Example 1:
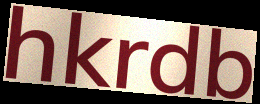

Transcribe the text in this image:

hkrdb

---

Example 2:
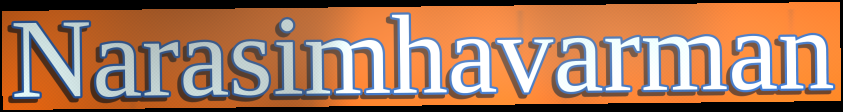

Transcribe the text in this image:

Narasimhavarman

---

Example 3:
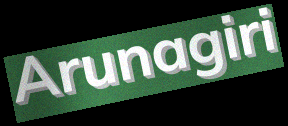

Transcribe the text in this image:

Arunagiri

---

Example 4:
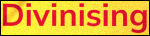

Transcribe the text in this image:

Divinising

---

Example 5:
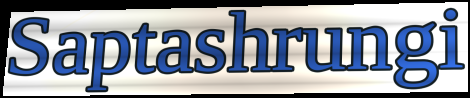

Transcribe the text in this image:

Saptashrungi